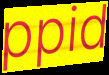
ppid